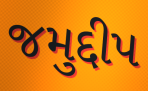
જમુદ્દીપ